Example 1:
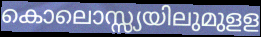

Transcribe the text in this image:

കൊലൊസ്സ്യയിലുമുളള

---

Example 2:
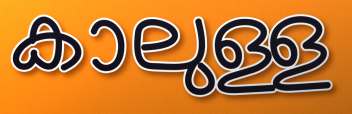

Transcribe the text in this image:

കാലുള്ള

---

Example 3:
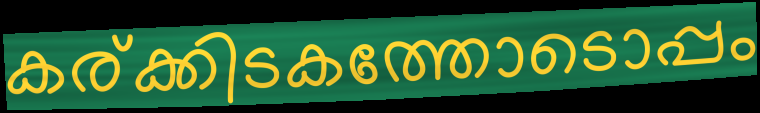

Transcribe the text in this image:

കര്ക്കിടകത്തോടൊപ്പം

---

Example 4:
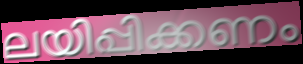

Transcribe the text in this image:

ലയിപ്പിക്കണം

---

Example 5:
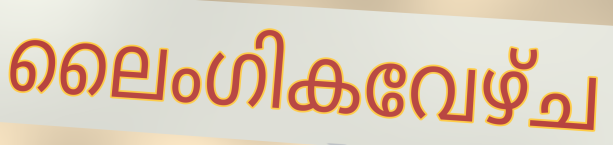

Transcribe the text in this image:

ലൈംഗികവേഴ്ച